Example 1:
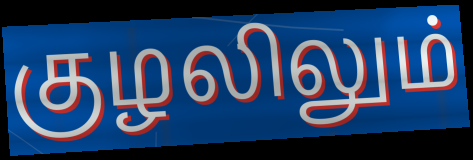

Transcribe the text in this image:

குழலிலும்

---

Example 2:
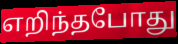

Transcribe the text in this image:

எறிந்தபோது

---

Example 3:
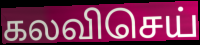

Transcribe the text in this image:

கலவிசெய்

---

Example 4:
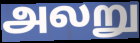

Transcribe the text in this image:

அலறு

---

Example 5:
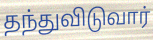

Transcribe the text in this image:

தந்துவிடுவார்